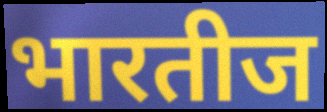
भारतीज